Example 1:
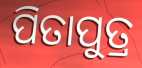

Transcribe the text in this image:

ପିତାପୁତ୍ର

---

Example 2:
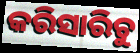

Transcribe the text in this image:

କରିସାରିଚୁ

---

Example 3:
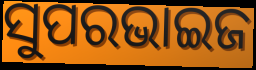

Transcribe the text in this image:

ସୁପରଭାଇଜ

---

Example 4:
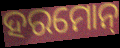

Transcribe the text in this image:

ହରମୋନ୍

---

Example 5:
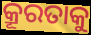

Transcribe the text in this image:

କ୍ରୂରତାକୁ